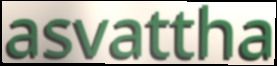
asvattha